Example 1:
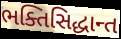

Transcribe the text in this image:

ભક્તિસિદ્ધાન્ત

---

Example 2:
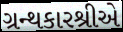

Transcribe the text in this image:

ગ્રન્થકારશ્રીએ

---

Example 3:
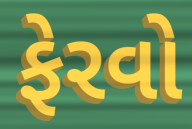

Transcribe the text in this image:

ફેરવો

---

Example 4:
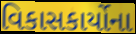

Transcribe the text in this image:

વિકાસકાર્યોના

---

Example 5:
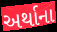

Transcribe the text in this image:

અર્થાના